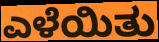
ಎಳೆಯಿತು